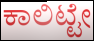
ಕಾಲಿಟ್ಟೇ